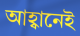
আহ্বানেই